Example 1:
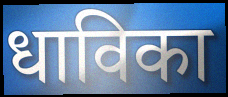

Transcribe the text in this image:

धाविका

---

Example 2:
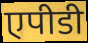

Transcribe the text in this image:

एपीडी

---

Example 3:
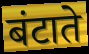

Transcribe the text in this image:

बंटाते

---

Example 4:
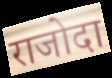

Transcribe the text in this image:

राजोदा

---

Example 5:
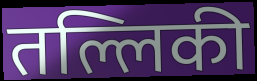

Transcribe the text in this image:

तल्लिकी